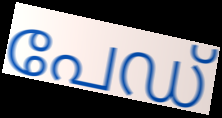
പേഡ്